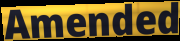
Amended